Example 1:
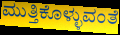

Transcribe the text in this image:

ಮುತ್ತಿಕೊಳ್ಳುವಂತೆ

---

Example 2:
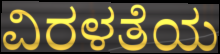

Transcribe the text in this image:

ವಿರಳತೆಯ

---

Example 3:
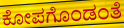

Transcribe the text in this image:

ಕೋಪಗೊಂಡಂತೆ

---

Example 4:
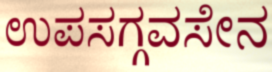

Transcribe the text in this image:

ಉಪಸಗ್ಗವಸೇನ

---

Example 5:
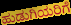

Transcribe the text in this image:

ಹುಡುಗಿಯರಿಗೆ